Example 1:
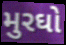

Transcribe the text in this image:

મુરઘો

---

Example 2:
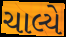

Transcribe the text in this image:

ચાલ્યે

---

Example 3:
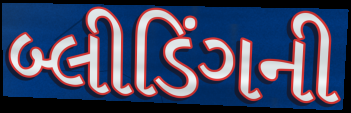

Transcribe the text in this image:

બ્લીડિંગની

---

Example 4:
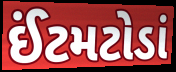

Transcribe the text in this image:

ઈંટમટોડાં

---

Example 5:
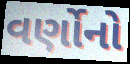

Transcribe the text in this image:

વર્ણોનો